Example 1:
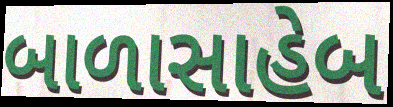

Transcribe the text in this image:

બાળાસાહેબ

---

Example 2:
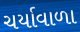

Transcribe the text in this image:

ચર્યાવાળા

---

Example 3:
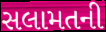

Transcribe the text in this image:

સલામતની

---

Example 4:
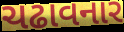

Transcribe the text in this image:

ચઢાવનાર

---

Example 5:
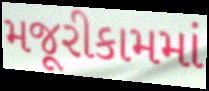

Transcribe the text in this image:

મજૂરીકામમાં